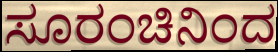
ಸೂರಂಚಿನಿಂದ